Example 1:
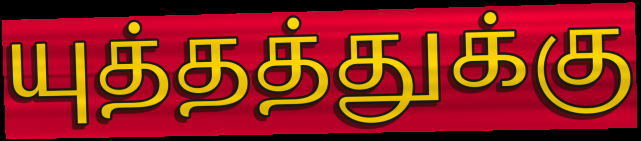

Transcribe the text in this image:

யுத்தத்துக்கு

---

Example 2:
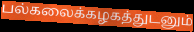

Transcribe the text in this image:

பல்கலைக்கழகத்துடனும்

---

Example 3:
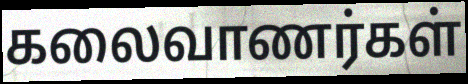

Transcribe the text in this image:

கலைவாணர்கள்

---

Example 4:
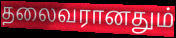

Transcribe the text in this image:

தலைவரானதும்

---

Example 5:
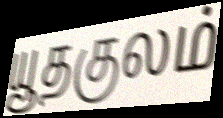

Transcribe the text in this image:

யூதகுலம்